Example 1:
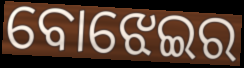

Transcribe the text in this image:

ବୋଝେଇର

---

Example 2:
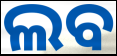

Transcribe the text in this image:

ଲବ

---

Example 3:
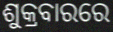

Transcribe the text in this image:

ଶୁକ୍ରବାରରେ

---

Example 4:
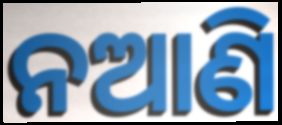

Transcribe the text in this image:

ନଆଣି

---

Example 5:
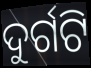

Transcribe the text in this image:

ଦୁର୍ଗଟି